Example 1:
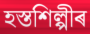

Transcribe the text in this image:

হস্তশিল্পীৰ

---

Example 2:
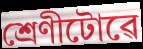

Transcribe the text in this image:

শ্ৰেণীটোৱে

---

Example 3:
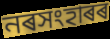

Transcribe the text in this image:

নৰসংহাৰৰ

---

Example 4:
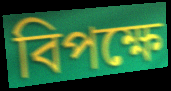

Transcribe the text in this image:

বিপক্ষে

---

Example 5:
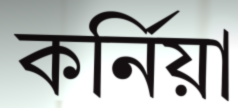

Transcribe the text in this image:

কৰ্নিয়া